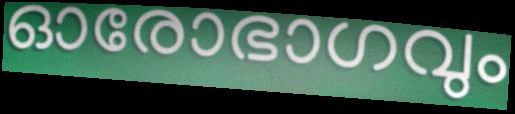
ഓരോഭാഗവും